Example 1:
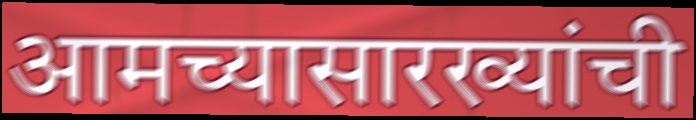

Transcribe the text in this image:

आमच्यासारख्यांची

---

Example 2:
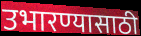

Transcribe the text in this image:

उभारण्यासाठी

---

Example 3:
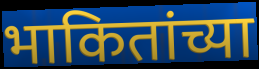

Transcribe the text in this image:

भाकितांच्या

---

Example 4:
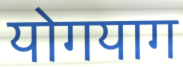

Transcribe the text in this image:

योगयाग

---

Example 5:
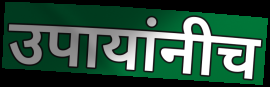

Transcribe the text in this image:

उपायांनीच